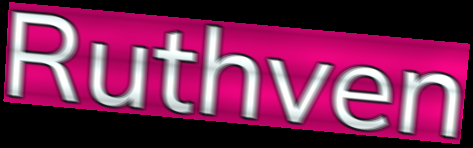
Ruthven